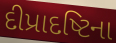
દીપ્રાદષ્ટિના